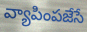
వ్యాపింపజేసే